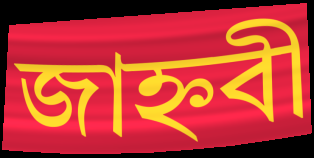
জাহ্নবী